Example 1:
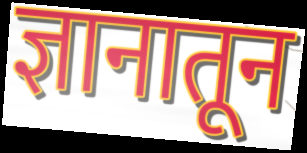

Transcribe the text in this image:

ज्ञानातून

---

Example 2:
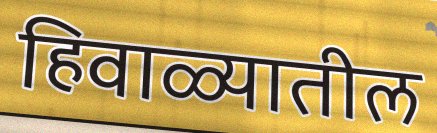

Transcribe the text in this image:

हिवाळ्यातील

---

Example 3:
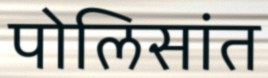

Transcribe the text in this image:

पोलिसांत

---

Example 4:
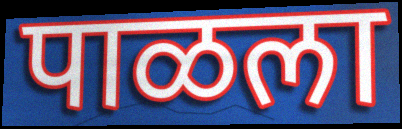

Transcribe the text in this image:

पाळला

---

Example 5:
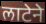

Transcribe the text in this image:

लाटेने